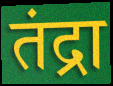
तंद्रा